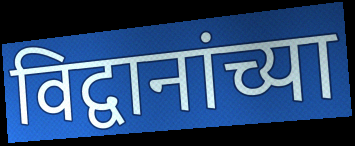
विद्वानांच्या